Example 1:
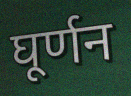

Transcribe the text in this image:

घूर्णन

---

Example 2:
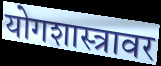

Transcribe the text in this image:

योगशास्त्रावर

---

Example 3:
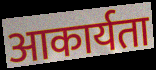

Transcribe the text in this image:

आकार्यता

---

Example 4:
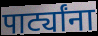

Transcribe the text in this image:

पार्ट्यांना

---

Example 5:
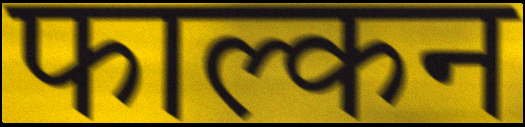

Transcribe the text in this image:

फाल्कन